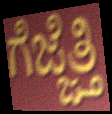
ಗೆಜ್ಜೆತ್ತಿ